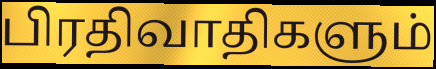
பிரதிவாதிகளும்